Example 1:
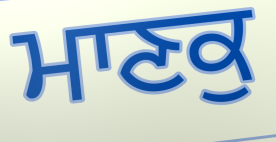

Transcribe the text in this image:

ਮਾਣਕੁ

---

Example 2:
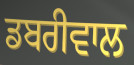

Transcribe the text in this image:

ਡਬਰੀਵਾਲ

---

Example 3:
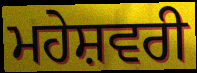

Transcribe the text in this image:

ਮਹੇਸ਼ਵਰੀ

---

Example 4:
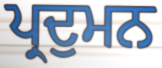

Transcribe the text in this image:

ਪ੍ਰਦੁਮਨ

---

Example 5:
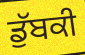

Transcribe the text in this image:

ਡੁੱਬਕੀ